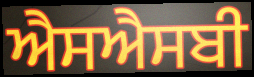
ਐਸਐਸਬੀ